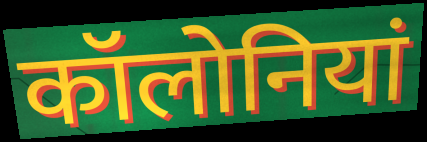
कॉलोनियां